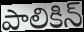
పాలికిన్